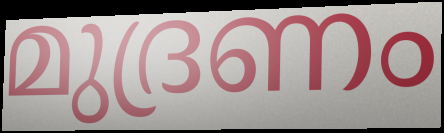
മുദ്രണം